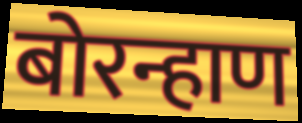
बोरन्हाण